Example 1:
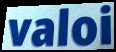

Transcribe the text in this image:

valoi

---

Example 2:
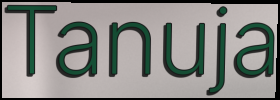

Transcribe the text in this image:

Tanuja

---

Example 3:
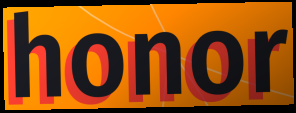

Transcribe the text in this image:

honor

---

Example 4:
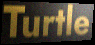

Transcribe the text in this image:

Turtle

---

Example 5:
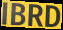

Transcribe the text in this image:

IBRD